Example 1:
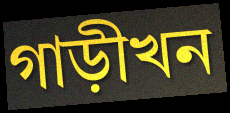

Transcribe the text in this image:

গাড়ীখন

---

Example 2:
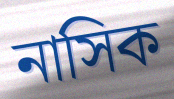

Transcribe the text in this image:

নাসিক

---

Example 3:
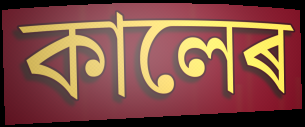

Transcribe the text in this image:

কালেৰ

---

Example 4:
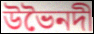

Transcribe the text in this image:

উভৈনদী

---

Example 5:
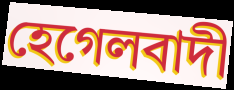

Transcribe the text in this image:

হেগেলবাদী